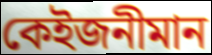
কেইজনীমান